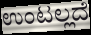
ಉಂಟಲ್ಲದೆ